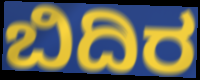
ಬಿದಿರ